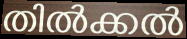
തിൽക്കൽ